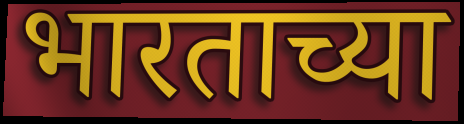
भारताच्या